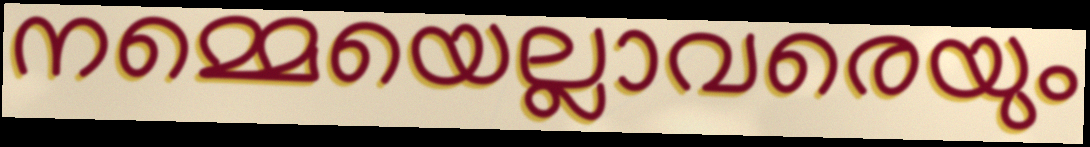
നമ്മെയെല്ലാവരെയും